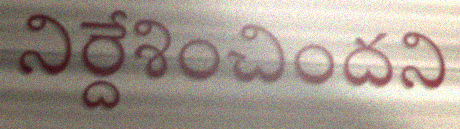
నిర్దేశించిందని